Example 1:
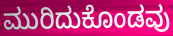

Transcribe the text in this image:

ಮುರಿದುಕೊಂಡವು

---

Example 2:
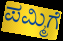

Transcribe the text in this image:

ಪಮ್ಮಿಗೆ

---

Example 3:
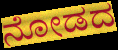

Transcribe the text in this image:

ನೋಡದ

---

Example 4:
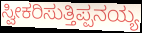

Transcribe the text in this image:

ಸ್ವೀಕರಿಸುತ್ತಿಪ್ಪನಯ್ಯ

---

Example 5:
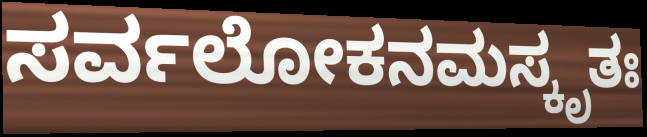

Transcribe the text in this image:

ಸರ್ವಲೋಕನಮಸ್ಕೃತಃ